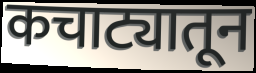
कचाट्यातून